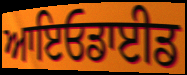
ਆਇਓਡਾਈਡ